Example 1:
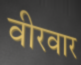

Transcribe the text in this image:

वीरवार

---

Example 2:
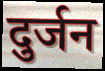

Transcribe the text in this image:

दुर्जन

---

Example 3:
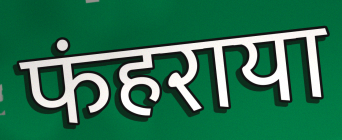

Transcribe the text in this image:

फंहराया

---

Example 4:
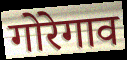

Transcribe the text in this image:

गोरेगाव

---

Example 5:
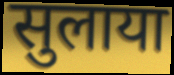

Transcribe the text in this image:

सुलाया